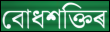
বোধশক্তিৰ